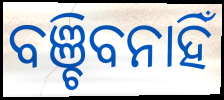
ବଞ୍ଚିବନାହିଁ